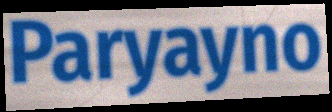
Paryayno